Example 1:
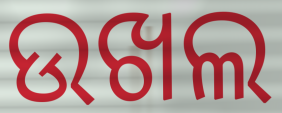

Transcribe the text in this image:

ଉଖଲ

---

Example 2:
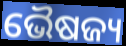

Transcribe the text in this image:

ଭୈଷଜ୍ୟ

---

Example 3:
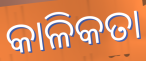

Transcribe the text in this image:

କାଳିକତା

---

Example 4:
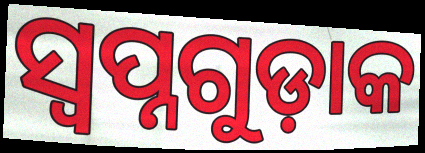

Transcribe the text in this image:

ସ୍ୱପ୍ନଗୁଡ଼ାକ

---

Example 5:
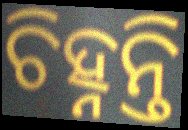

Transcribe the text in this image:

ଚିହ୍ନନ୍ତି